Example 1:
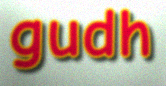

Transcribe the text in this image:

gudh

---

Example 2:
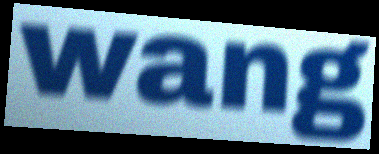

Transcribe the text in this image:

wang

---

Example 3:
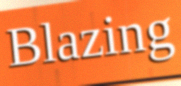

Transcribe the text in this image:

Blazing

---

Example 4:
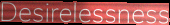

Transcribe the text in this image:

Desirelessness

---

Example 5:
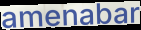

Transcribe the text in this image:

amenabar